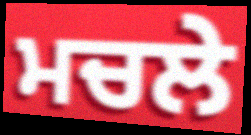
ਮਚਲੇ